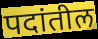
पदांतील